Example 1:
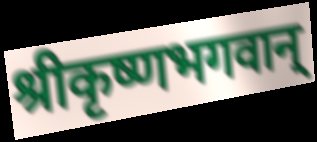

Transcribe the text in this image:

श्रीकृष्णभगवान्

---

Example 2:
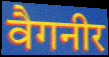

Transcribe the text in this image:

वैगनीर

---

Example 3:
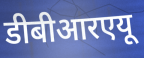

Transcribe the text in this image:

डीबीआरएयू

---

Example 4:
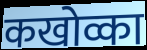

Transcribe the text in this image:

कखोव्का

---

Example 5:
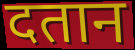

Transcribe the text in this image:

दतान